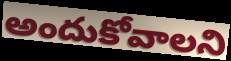
అందుకోవాలని